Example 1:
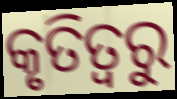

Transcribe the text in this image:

କୃତିତ୍ଵରୁ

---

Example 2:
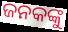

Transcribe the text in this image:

ଜନକଙ୍କୁ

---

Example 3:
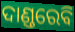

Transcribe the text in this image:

ଦାଣ୍ଡରେବି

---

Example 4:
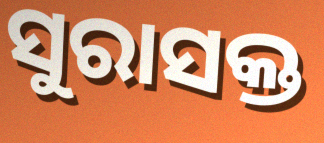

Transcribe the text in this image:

ସୁରାସକ୍ତ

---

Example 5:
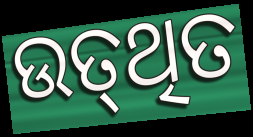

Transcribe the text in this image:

ଉତ୍‍ଥିତ